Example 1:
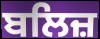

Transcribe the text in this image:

ਬਲਿਜ਼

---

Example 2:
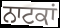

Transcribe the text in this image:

ਨਾਟਕਾਂ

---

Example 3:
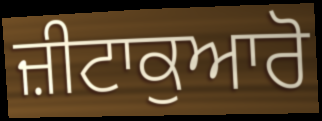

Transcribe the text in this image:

ਜ਼ੀਟਾਕੁਆਰੋ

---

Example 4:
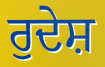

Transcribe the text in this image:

ਰੁਦੇਸ਼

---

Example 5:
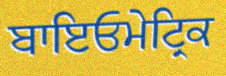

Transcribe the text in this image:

ਬਾਇਓਮੇਟ੍ਰਿਕ